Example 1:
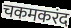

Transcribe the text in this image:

चकमकरंद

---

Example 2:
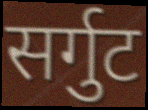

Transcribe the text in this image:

सर्गुट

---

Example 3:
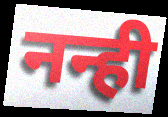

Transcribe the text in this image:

नन्ही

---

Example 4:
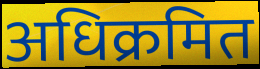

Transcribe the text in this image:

अधिक्रमित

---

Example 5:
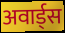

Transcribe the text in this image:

अवार्ड्स